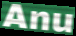
Anu